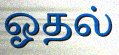
ஓதல்